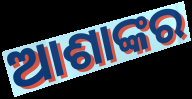
ଆଶାଙ୍କର